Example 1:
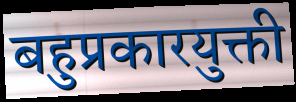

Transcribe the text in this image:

बहुप्रकारयुक्ती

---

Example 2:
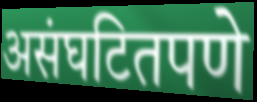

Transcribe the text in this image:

असंघटितपणे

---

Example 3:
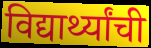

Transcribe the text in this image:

विद्यार्थ्यांची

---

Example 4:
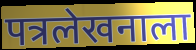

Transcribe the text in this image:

पत्रलेखनाला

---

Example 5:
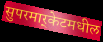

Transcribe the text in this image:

सुपरमार्केटमधील